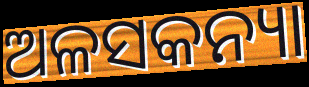
ଅଳସକନ୍ୟା